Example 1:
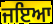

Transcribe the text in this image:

ਜਇਆ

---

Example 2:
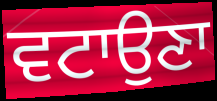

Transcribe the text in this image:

ਵਟਾਉਣਾ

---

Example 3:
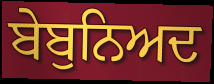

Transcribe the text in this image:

ਬੇਬੁਨਿਅਦ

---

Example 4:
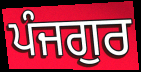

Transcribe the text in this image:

ਪੰਜਗੁਰ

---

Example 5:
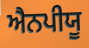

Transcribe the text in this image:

ਐਨਪੀਯੂ